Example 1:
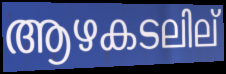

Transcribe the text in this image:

ആഴകടലില്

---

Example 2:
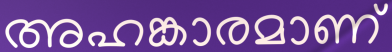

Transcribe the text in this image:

അഹങ്കാരമാണ്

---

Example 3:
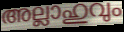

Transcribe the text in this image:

അല്ലാഹുവും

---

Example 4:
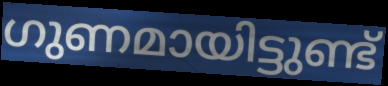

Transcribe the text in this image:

ഗുണമായിട്ടുണ്ട്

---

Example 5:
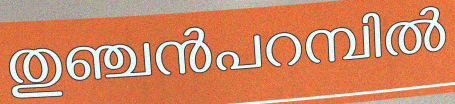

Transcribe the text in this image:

തുഞ്ചൻപറമ്പിൽ